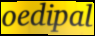
oedipal